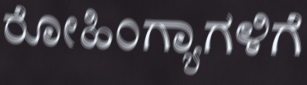
ರೋಹಿಂಗ್ಯಾಗಳಿಗೆ